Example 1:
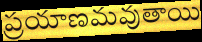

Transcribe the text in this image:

ప్రయాణమవుతాయి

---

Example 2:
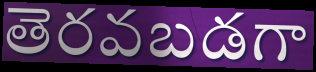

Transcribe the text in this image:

తెరవబడగా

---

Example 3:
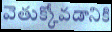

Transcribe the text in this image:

వెతుక్కోవడానికి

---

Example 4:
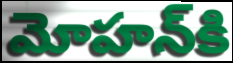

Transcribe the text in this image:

మోహన్‌కి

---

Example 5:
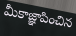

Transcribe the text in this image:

మీకాజ్ఞాపించిన